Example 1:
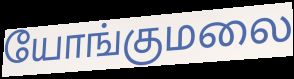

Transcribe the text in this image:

யோங்குமலை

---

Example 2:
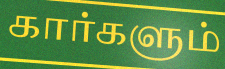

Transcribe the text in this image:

கார்களும்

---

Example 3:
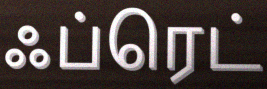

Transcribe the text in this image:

ஃப்ரெட்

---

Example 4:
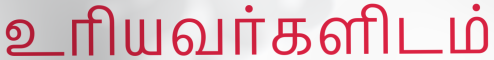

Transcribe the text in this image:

உரியவர்களிடம்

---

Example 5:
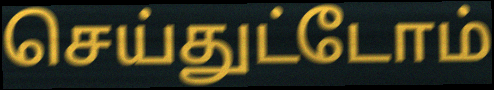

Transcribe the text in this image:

செய்துட்டோம்